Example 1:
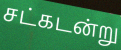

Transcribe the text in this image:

சட்கடன்று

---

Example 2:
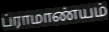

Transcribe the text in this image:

ப்ராமாண்யம்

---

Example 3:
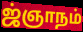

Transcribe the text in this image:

ஜ்ஞாநம்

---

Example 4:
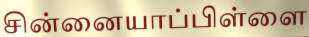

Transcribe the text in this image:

சின்னையாப்பிள்ளை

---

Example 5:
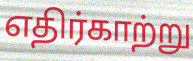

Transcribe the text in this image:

எதிர்காற்று